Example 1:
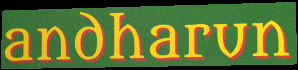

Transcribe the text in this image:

andharun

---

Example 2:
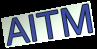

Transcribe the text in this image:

AITM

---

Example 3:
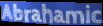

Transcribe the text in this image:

Abrahamic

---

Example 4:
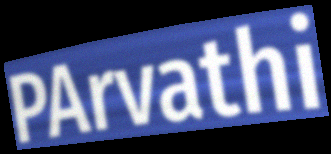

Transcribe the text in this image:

PArvathi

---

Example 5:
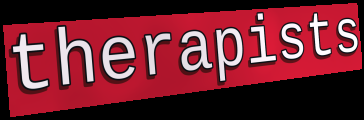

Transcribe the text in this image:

therapists